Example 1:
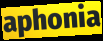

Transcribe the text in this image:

aphonia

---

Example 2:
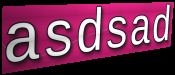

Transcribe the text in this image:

asdsad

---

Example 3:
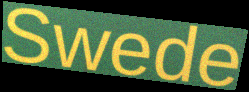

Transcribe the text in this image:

Swede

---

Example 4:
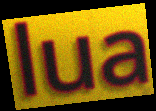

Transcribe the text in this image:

lua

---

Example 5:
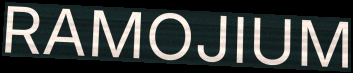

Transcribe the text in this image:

RAMOJIUM